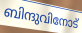
ബിന്ദുവിനോട്